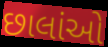
છાલાંઓ